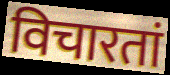
विचारतां